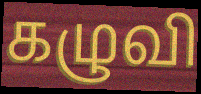
கழுவி